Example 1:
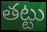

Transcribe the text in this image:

తట్టు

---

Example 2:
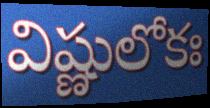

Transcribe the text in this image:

విష్ణులోకః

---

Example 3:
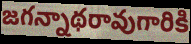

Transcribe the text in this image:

జగన్నాథరావుగారికి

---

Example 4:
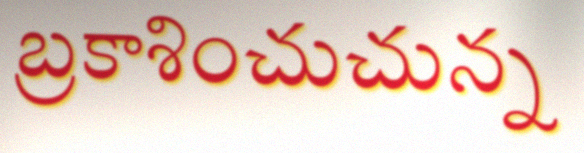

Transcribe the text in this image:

బ్రకాశించుచున్న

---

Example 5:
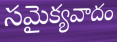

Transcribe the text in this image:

సమైక్యవాదం